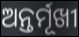
ଅନ୍ତର୍ମୂଖୀ